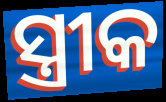
ସ୍ତ୍ରୀକ